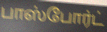
பாஸ்போர்ட்